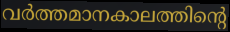
വർത്തമാനകാലത്തിന്റെ